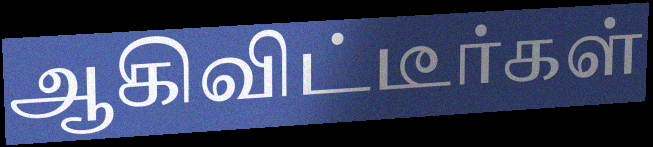
ஆகிவிட்டீர்கள்